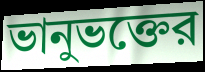
ভানুভক্তের